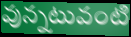
వున్నటువంటి